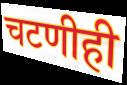
चटणीही